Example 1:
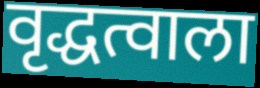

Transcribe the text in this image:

वृद्धत्वाला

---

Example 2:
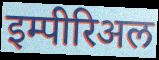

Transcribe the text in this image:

इम्पीरिअल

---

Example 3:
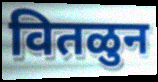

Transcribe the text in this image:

वितळुन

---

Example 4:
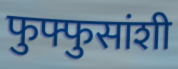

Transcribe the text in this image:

फुफ्फुसांशी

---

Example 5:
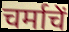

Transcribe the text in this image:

चर्माचें